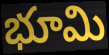
భూమి